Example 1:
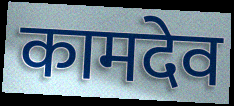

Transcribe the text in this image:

कामदेव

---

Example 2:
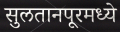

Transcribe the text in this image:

सुलतानपूरमध्ये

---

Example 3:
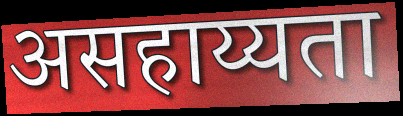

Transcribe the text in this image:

असहाय्यता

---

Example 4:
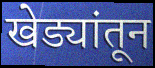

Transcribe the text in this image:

खेड्यांतून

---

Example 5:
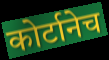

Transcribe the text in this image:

कोर्टानेच